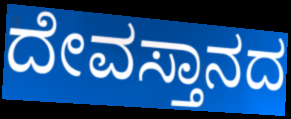
ದೇವಸ್ತಾನದ